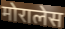
मोरालेस